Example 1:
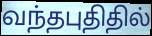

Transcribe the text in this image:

வந்தபுதிதில்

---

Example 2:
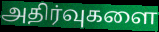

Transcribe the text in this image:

அதிர்வுகளை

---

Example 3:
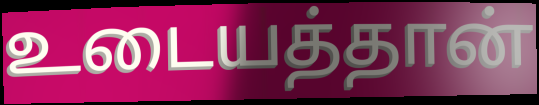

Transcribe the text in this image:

உடையத்தான்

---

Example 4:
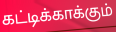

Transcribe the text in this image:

கட்டிக்காக்கும்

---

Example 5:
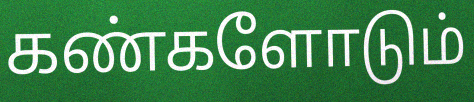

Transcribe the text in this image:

கண்களோடும்